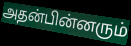
அதன்பின்னரும்